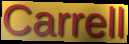
Carrell